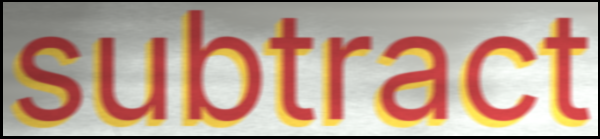
subtract